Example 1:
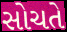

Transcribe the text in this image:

સોચતે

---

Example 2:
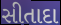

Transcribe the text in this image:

સીતાદા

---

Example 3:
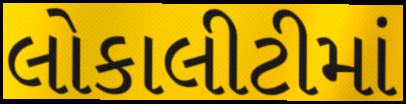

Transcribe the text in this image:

લોકાલીટીમાં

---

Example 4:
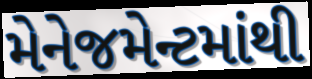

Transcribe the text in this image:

મેનેજમેન્ટમાંથી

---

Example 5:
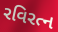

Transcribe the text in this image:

રવિરત્ન